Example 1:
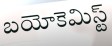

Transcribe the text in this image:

బయోకెమిస్ట్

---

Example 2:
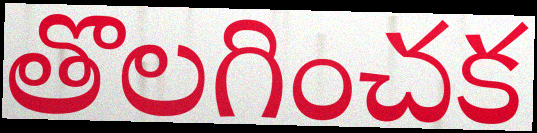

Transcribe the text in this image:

తొలగించక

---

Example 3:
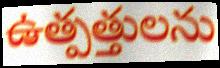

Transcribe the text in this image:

ఉత్పత్తులను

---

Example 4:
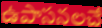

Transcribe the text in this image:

ఉపాసనలచే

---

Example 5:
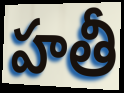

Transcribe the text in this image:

హతీ